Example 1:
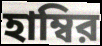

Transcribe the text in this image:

হাম্বির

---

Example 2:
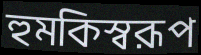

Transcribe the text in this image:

হুমকিস্বরূপ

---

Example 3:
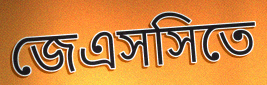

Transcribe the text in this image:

জেএসসিতে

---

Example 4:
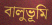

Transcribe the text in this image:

বালুভূমি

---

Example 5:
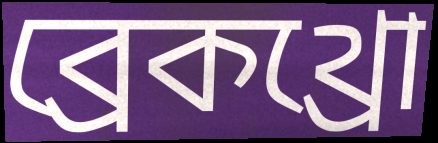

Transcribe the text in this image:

ব্রেকথ্রো